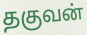
தகுவன்